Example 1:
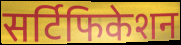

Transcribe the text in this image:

सर्टिफिकेशन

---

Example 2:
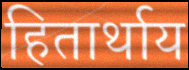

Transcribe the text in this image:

हितार्थाय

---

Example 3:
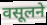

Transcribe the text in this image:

वसूलने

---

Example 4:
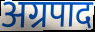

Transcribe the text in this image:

अग्रपाद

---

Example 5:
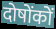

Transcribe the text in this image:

दोषोंकों